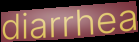
diarrhea